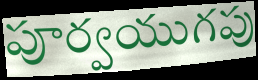
పూర్వయుగపు